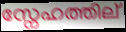
സ്നേഹത്തില്